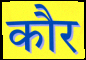
कौर